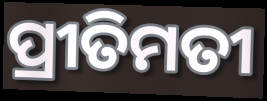
ପ୍ରୀତିମତୀ